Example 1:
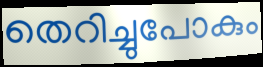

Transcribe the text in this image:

തെറിച്ചുപോകും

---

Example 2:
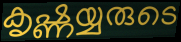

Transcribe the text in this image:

കൃഷ്ണയ്യരുടെ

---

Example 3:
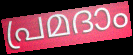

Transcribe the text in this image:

പ്രമദാം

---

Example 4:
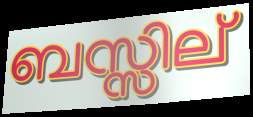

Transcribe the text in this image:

ബസ്സില്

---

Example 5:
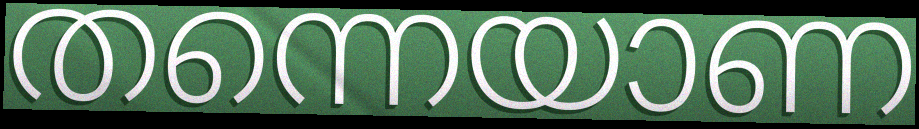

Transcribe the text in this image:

തന്നെയാണ